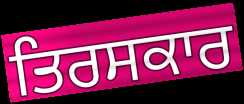
ਤਿਰਸਕਾਰ